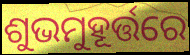
ଶୁଭମୁହୂର୍ତ୍ତରେ